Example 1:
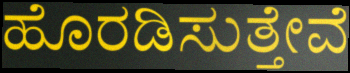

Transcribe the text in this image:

ಹೊರಡಿಸುತ್ತೇವೆ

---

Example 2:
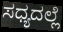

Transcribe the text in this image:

ಸಧ್ಯದಲ್ಲೆ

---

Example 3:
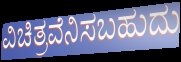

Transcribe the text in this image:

ವಿಚಿತ್ರವೆನಿಸಬಹುದು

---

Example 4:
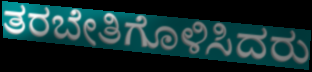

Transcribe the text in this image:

ತರಬೇತಿಗೊಳಿಸಿದರು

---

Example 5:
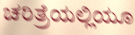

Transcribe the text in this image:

ಚರಿತ್ರೆಯಲ್ಲಿಯೂ